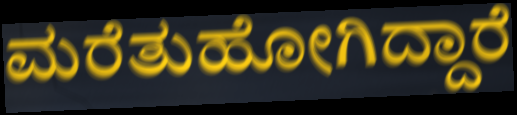
ಮರೆತುಹೋಗಿದ್ದಾರೆ